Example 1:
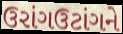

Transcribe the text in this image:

ઉરાંગઉટાંગને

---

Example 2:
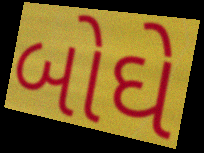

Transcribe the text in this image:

બોઘે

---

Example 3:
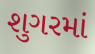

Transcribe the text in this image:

શુગરમાં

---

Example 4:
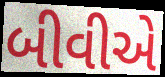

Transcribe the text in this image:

બીવીએ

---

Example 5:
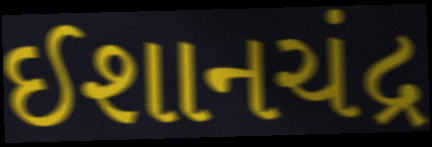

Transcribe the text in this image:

ઈશાનચંદ્ર